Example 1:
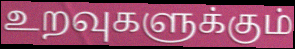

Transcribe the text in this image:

உறவுகளுக்கும்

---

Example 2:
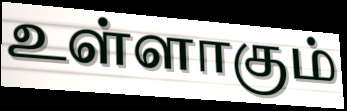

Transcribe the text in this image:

உள்ளாகும்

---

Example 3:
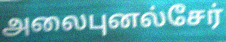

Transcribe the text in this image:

அலைபுனல்சேர்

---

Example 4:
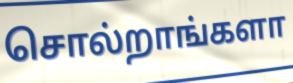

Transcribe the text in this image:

சொல்றாங்களா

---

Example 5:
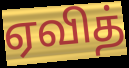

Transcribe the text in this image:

ஏவித்